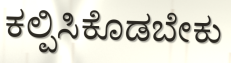
ಕಲ್ಪಿಸಿಕೊಡಬೇಕು